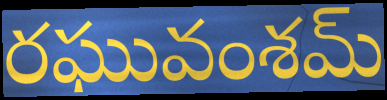
రఘువంశమ్